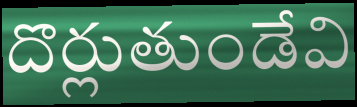
దొర్లుతుండేవి